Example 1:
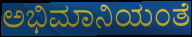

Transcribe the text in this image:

ಅಭಿಮಾನಿಯಂತೆ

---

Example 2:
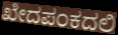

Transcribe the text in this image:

ಖೇದಪಂಕದಲಿ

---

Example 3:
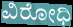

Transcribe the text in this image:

ವಿರೋಧಿ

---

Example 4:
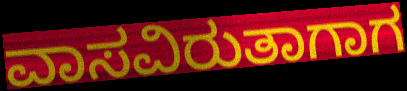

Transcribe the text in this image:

ವಾಸವಿರುತಾಗಾಗ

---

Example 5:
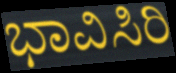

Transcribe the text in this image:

ಭಾವಿಸಿರಿ